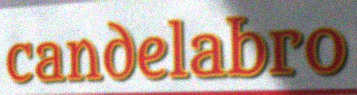
candelabro